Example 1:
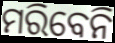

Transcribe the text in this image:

ମରିବେନି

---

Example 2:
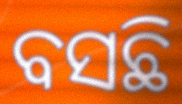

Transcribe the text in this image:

ବସଛି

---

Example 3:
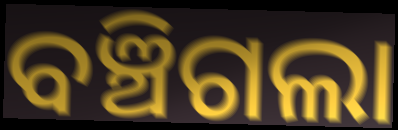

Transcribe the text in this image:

ବଞ୍ଚିଗଲା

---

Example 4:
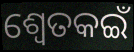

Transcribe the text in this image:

ଶ୍ୱେତକଇଁ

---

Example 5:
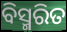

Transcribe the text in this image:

ବିସ୍ମରିତ